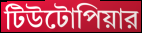
টিউটোপিয়ার